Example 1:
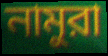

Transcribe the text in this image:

নামুরা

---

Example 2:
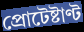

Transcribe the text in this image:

প্রোটেষ্টাণ্ট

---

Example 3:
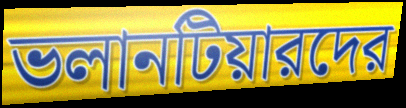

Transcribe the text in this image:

ভলানটিয়ারদের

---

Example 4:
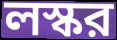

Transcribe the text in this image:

লস্কর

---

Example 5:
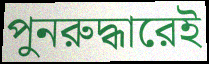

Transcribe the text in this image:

পুনরুদ্ধারেই